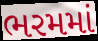
ભરમમાં